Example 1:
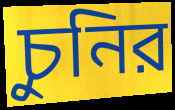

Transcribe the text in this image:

চুনির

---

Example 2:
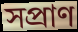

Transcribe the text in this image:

সপ্রাণ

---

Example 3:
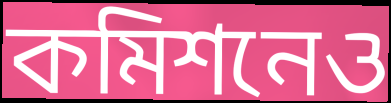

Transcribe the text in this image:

কমিশনেও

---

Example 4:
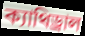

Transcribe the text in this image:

ক্যাথিড্রাল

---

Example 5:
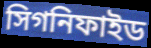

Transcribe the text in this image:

সিগনিফাইড